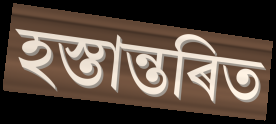
হস্তান্তৰিত